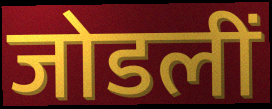
जोडलीं